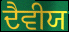
ਦੈਵੀਯ